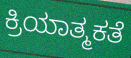
ಕ್ರಿಯಾತ್ಮಕತೆ